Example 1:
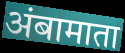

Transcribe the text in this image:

अंबामाता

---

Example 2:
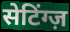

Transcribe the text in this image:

सेटिंग्ज़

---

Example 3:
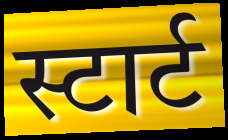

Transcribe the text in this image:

स्टार्ट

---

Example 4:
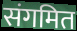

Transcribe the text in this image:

संगमित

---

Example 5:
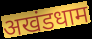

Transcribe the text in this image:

अखंडधाम